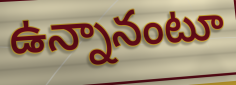
ఉన్నానంటూ